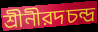
শ্রীনীরদচন্দ্র